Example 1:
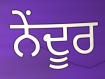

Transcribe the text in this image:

ਨੇਂਦੂਰ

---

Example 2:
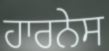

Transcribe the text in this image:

ਹਾਰਨੇਸ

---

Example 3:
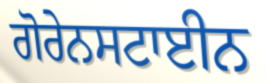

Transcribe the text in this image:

ਗੋਰੇਨਸਟਾਈਨ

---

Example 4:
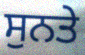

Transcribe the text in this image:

ਸੁਨਤੇ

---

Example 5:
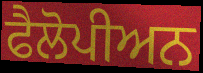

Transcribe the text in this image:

ਫੈਲੋਪੀਅਨ